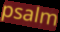
psalm